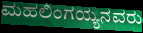
ಮಹಲಿಂಗಯ್ಯನವರು